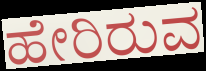
ಹೇರಿರುವ